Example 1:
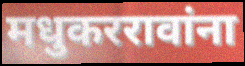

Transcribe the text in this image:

मधुकररावांना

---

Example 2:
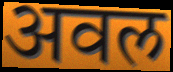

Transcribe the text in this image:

अवल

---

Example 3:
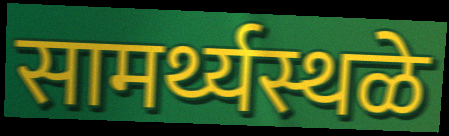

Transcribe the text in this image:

सामर्थ्यस्थळे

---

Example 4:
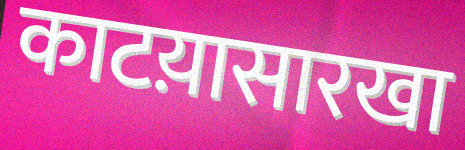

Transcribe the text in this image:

काटय़ासारखा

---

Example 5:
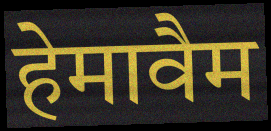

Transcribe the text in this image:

हेमावैम